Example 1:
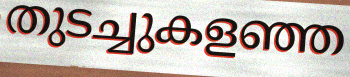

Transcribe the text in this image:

തുടച്ചുകളഞ്ഞ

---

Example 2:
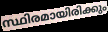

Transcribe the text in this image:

സ്ഥിരമായിരിക്കും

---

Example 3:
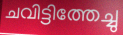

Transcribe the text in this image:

ചവിട്ടിത്തേച്ചു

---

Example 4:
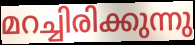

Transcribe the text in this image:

മറച്ചിരിക്കുന്നു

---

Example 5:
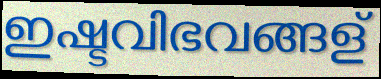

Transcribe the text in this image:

ഇഷ്ടവിഭവങ്ങള്